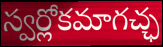
స్వర్లోకమాగచ్ఛ